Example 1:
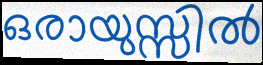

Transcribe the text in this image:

ഒരായുസ്സിൽ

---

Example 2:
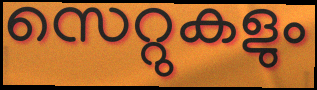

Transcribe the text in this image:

സെറ്റുകളും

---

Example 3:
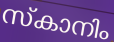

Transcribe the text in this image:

സ്‌കാനിം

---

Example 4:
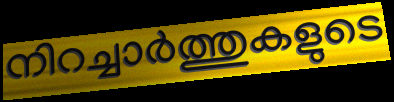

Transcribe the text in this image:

നിറച്ചാർത്തുകളുടെ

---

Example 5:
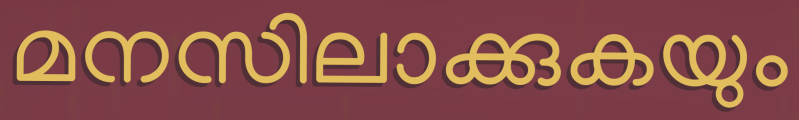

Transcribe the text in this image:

മനസിലാക്കുകയും